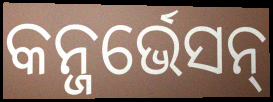
କନ୍ଜର୍ଭେସନ୍